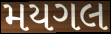
મયગલ